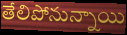
తేలిపోనున్నాయి